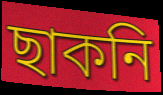
ছাকনি